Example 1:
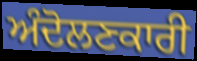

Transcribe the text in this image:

ਅੰਦੋਲਣਕਾਰੀ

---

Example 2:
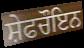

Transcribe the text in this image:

ਸ਼ੇਫਚੌਇਨ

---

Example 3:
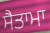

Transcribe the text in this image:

ਸੈਤਾਮਾ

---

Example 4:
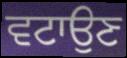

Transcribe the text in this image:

ਵਟਾਉਣ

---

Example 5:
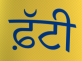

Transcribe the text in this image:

ਫ਼ੱਟੀ